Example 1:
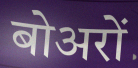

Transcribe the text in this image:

बोअरों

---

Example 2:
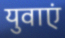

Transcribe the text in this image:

युवाएं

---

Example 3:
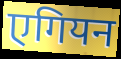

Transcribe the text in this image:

एगियन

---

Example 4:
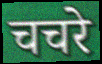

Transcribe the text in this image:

चचरे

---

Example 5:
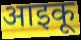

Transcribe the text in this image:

आइकू